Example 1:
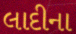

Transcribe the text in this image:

લાદીના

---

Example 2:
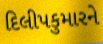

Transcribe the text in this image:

દિલીપકુમારને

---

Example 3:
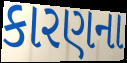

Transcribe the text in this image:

કારણના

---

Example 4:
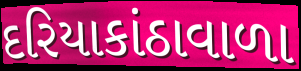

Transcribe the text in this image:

દરિયાકાંઠાવાળા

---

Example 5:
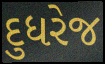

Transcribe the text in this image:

દુધરેજ